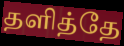
தளித்தே